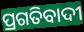
ପ୍ରଗତିବାଦୀ